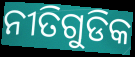
ନୀତିଗୁଡିକ